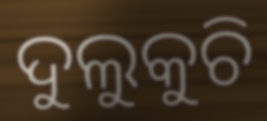
ଦୁଲୁକୁଚି